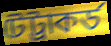
টেট্ৰাকৰ্ড